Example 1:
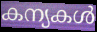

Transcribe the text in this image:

കന്യകൾ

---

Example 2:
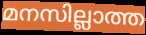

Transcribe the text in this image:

മനസില്ലാത്ത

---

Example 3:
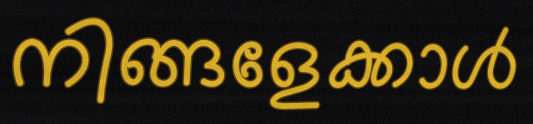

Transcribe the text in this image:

നിങ്ങളേക്കാൾ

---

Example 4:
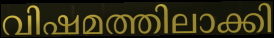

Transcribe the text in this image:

വിഷമത്തിലാക്കി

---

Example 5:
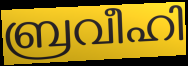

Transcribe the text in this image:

ബ്രവീഹി